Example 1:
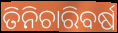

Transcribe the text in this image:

ତିନିଚାରିବର୍ଷ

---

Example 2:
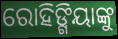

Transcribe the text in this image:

ରୋହିଙ୍ଗିୟାଙ୍କୁ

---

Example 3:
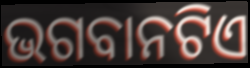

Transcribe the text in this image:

ଭଗବାନଟିଏ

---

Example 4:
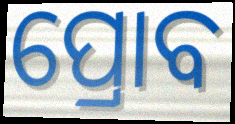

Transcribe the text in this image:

ପ୍ରୋବ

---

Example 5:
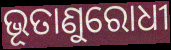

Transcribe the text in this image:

ଭୂତାଣୁରୋଧୀ